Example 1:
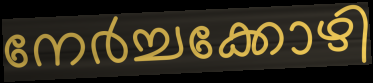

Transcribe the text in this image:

നേർച്ചക്കോഴി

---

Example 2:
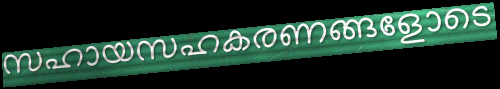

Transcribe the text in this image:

സഹായസഹകരണങ്ങളോടെ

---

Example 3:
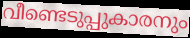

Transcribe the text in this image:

വീണ്ടെടുപ്പുകാരനും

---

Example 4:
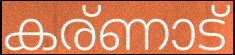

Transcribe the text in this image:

കര്ണാട്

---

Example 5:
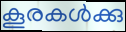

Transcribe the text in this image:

കൂരകൾക്കു